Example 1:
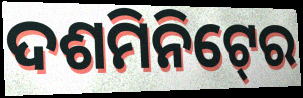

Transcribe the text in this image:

ଦଶମିନିଟ୍‍ରେ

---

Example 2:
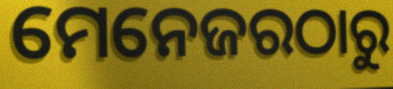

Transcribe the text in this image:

ମେନେଜରଠାରୁ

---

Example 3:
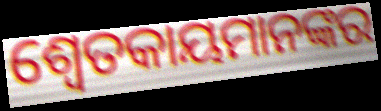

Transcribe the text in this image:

ଶ୍ବେତକାୟମାନଙ୍କର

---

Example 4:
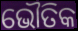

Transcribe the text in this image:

ଭୌତିକ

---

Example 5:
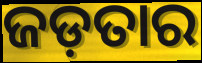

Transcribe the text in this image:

ଜଡ଼ତାର